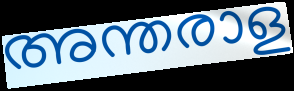
അന്തരാള